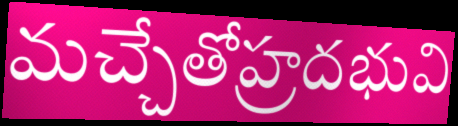
మచ్చేతోహ్రదభువి